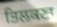
ਤਿਲਕਣਾ